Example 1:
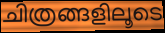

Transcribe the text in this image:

ചിത്രങ്ങളിലൂടെ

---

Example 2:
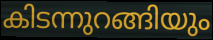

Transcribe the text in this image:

കിടന്നുറങ്ങിയും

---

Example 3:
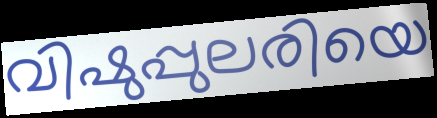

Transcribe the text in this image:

വിഷുപ്പുലരിയെ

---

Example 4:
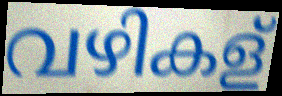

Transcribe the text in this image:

വഴികള്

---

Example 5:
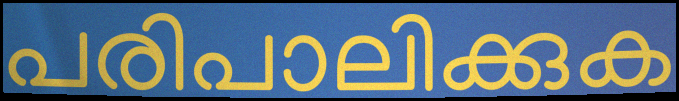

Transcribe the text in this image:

പരിപാലിക്കുക